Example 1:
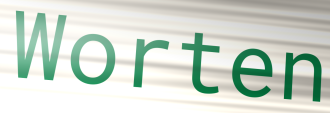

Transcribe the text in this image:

Worten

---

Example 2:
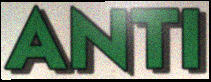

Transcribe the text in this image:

ANTI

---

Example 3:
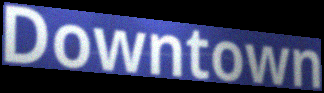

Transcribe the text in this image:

Downtown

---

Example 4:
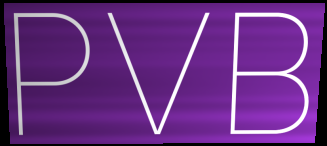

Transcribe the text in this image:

PVB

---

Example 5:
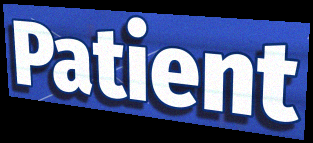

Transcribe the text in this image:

Patient